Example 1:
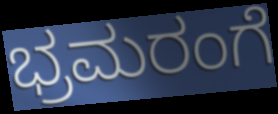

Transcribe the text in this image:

ಭ್ರಮರಂಗೆ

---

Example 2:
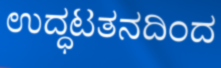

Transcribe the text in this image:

ಉದ್ಧಟತನದಿಂದ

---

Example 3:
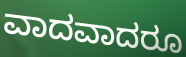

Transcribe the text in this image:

ವಾದವಾದರೂ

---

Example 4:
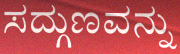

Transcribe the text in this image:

ಸದ್ಗುಣವನ್ನು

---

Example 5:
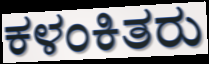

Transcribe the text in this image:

ಕಳಂಕಿತರು